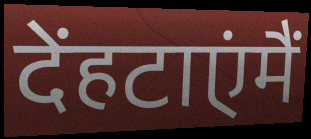
देंहटाएंमैं